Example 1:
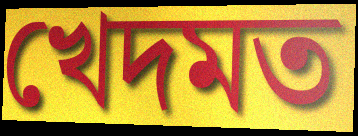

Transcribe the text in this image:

খেদমত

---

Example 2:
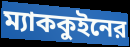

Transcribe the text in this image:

ম্যাককুইনের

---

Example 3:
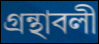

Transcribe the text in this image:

গ্রন্থাবলী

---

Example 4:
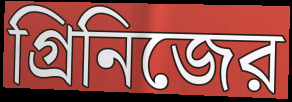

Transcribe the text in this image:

গ্রিনিজের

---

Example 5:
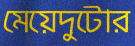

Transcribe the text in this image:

মেয়েদুটোর